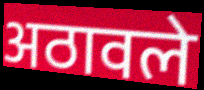
अठावले